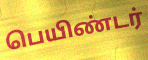
பெயிண்டர்